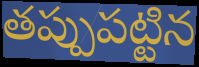
తప్పుపట్టిన